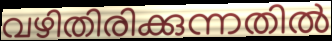
വഴിതിരിക്കുന്നതിൽ